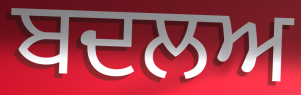
ਬਦਲਅ